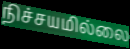
நிச்சயமில்லை